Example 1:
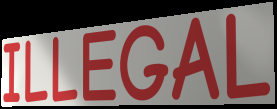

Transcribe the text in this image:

ILLEGAL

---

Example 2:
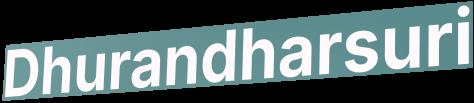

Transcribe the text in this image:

Dhurandharsuri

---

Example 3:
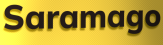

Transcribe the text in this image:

Saramago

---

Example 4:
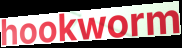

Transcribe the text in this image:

hookworm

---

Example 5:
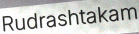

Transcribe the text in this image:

Rudrashtakam